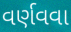
વર્ણવવા